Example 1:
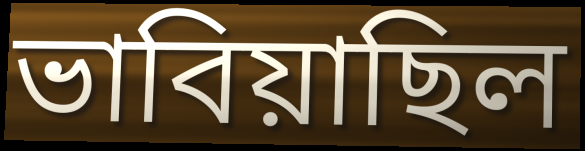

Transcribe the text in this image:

ভাবিয়াছিল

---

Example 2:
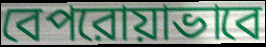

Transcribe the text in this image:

বেপরোয়াভাবে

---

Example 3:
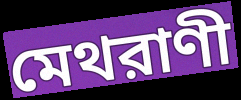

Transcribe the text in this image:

মেথরাণী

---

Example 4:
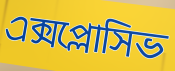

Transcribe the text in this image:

এক্সপ্লোসিভ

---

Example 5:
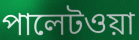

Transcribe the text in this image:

পালেটওয়া